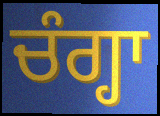
ਚੰਗ੍ਹਾ